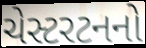
ચેસ્ટરટનનો